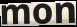
mon